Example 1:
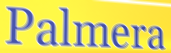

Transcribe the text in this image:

Palmera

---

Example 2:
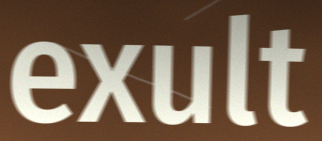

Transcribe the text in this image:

exult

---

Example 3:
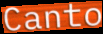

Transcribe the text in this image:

Canto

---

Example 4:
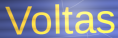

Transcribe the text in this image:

Voltas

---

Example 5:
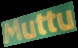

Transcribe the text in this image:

Muttu